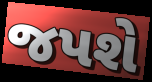
જપશે